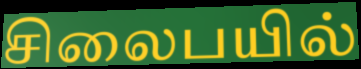
சிலைபயில்